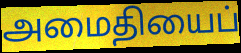
அமைதியைப்